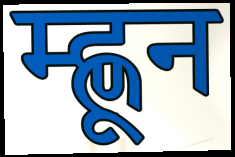
म्ह्णून